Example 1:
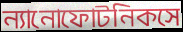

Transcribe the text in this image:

ন্যানোফোটনিকসে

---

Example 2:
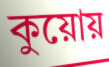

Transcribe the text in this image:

কুয়োয়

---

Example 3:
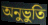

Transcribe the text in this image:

অনুভুতি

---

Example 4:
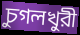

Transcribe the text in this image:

চুগলখুরী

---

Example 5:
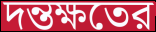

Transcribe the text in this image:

দন্তক্ষতের